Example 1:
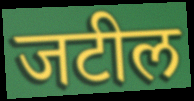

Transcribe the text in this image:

जटील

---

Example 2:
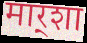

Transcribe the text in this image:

मार्शा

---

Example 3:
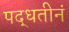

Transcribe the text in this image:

पद्धतीनं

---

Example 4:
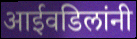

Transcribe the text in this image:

आईवडिलांनी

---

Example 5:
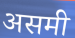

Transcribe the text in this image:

असमी